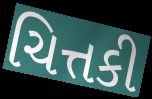
ચિત્તકી